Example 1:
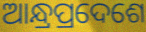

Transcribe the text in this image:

ଆନ୍ଧ୍ରପ୍ରଦେଶେ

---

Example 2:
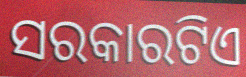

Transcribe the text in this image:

ସରକାରଟିଏ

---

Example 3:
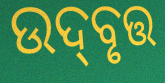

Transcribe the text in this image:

ଉଦ୍‌ବୃତ୍ତ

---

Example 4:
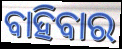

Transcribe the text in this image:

ବାହିବାର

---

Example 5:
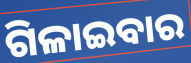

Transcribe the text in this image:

ଗିଳାଇବାର